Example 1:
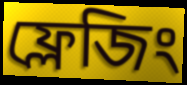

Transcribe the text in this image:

ফ্লেজিং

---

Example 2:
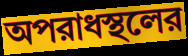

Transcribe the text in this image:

অপরাধস্থলের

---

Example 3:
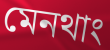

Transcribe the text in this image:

মেনথাং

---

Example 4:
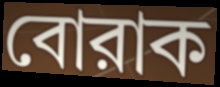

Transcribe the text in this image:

বোরাক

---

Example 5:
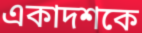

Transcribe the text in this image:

একাদশকে